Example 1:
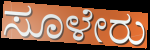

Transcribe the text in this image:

ಸೂಳೇರು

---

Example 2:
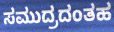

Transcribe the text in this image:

ಸಮುದ್ರದಂತಹ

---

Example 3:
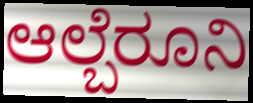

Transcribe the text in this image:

ಆಲ್ಬೆರೂನಿ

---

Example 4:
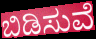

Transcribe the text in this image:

ಬಿಡಿಸುವೆ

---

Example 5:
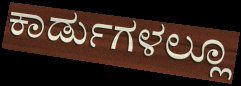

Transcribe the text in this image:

ಕಾರ್ಡುಗಳಲ್ಲೂ